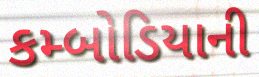
કમ્બોડિયાની